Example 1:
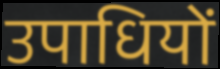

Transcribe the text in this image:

उपाधियों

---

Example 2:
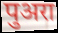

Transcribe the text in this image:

पुअरा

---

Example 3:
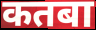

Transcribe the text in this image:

कतबा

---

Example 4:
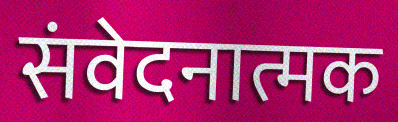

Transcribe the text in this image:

संवेदनात्मक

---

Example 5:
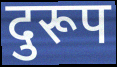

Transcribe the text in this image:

दुरूप